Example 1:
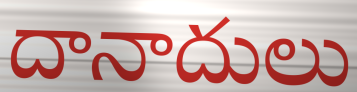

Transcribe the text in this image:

దానాదులు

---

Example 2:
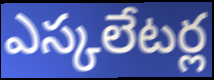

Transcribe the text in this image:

ఎస్కలేటర్ల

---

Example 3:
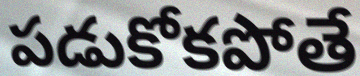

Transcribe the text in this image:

పడుకోకపోతే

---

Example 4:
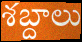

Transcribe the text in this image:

శబ్దాలు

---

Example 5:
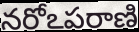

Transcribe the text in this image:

నరోఽపరాణి